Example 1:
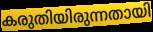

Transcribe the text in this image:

കരുതിയിരുന്നതായി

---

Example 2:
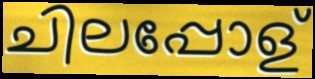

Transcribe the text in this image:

ചിലപ്പോള്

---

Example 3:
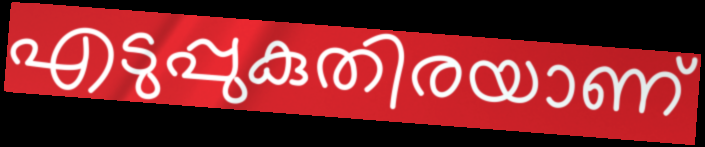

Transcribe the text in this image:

എടുപ്പുകുതിരയാണ്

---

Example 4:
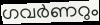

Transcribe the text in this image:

ഗവർണറും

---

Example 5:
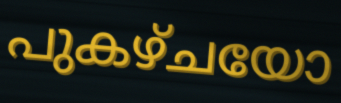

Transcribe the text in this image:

പുകഴ്ചയോ